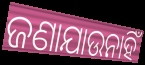
ଜଣାଯାଉନାହିଁ